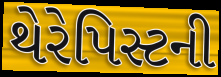
થેરેપિસ્ટની